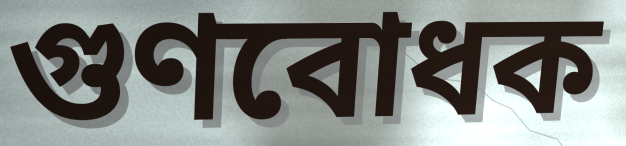
গুণবোধক